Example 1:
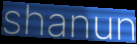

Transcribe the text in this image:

shanun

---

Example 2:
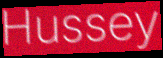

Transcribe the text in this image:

Hussey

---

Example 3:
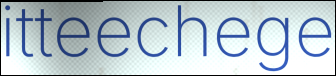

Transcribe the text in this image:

itteechege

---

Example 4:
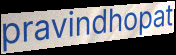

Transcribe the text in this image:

pravindhopat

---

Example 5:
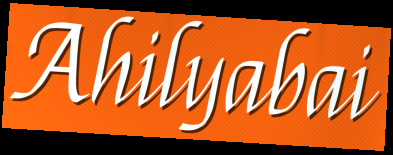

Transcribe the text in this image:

Ahilyabai